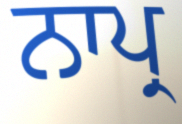
ਨਾਪ੍ਰ